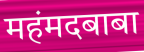
महंमदबाबा